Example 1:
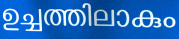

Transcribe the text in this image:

ഉച്ചത്തിലാകും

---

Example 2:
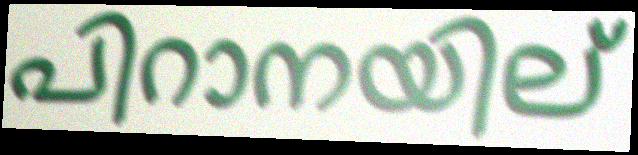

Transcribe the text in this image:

പിറാനയില്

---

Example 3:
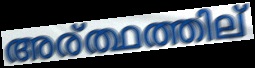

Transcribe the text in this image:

അര്ത്ഥത്തില്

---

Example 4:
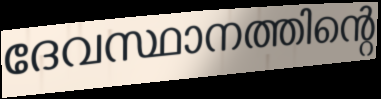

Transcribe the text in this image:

ദേവസ്ഥാനത്തിന്റെ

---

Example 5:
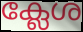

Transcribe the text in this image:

ക്ലേശ